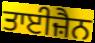
ਤਾਈਜ਼ੈਨ